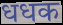
धधक